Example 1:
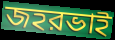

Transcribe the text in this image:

জহরভাই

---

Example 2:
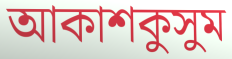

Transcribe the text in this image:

আকাশকুসুম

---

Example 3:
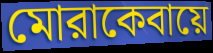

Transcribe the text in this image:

মোরাকেবায়ে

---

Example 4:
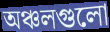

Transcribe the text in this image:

অঞ্চলগুলো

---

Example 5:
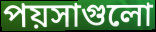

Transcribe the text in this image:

পয়সাগুলো